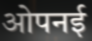
ओपनई